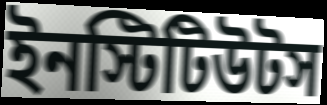
ইনস্টিটিউটস